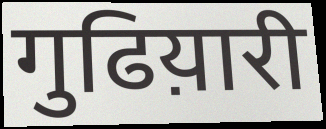
गुढिय़ारी